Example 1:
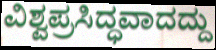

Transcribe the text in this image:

ವಿಶ್ವಪ್ರಸಿದ್ಧವಾದದ್ದು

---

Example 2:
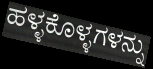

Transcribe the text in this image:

ಹಳ್ಳಕೊಳ್ಳಗಳನ್ನು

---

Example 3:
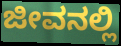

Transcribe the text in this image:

ಜೀವನಲ್ಲಿ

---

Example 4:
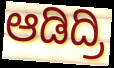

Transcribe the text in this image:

ಆಡಿದ್ರಿ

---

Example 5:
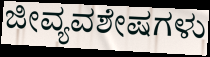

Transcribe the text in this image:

ಜೀವ್ಯವಶೇಷಗಳು